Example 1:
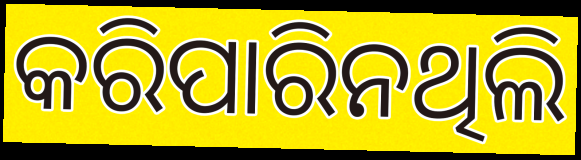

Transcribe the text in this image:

କରିପାରିନଥିଲି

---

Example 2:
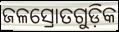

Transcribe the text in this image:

ଜଳସ୍ରୋତଗୁଡ଼ିକ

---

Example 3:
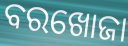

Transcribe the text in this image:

ବରଖୋଜା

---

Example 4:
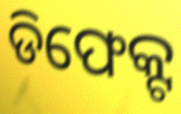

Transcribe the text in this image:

ଡିଫେକ୍ଟ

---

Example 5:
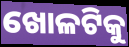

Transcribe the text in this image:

ଖୋଳଟିକୁ